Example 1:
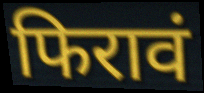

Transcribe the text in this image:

फिरावं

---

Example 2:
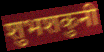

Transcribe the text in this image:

शुभशकुनी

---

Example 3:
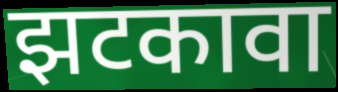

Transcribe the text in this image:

झटकावा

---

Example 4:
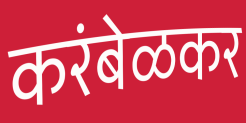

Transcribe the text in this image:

करंबेळकर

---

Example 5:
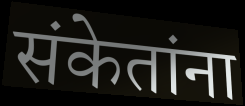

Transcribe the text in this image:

संकेतांना